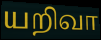
யறிவா